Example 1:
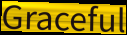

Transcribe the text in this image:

Graceful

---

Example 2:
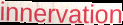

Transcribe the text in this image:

innervation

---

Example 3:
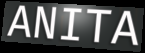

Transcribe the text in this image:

ANITA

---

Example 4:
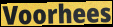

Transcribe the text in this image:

Voorhees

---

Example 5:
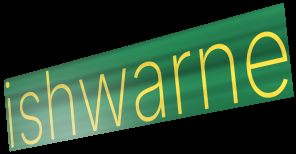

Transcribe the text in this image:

ishwarne